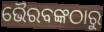
ଭୈରବଙ୍କଠାରୁ